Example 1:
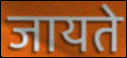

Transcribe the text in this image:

जायते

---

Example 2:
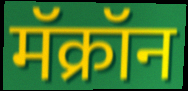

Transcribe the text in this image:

मॅक्रॉन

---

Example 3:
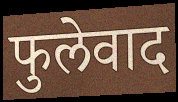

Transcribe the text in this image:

फुलेवाद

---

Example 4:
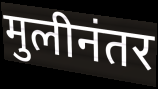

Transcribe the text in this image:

मुलीनंतर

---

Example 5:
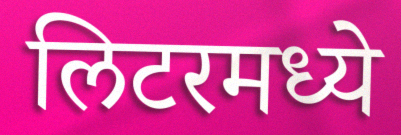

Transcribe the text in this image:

लिटरमध्ये